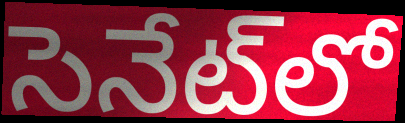
సెనేట్‌లో